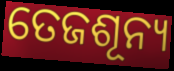
ତେଜଶୂନ୍ୟ